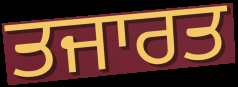
ਤਜਾਰਤ